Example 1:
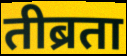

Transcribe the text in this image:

तीब्रता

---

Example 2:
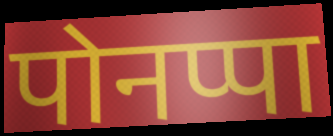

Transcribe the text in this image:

पोनप्‍पा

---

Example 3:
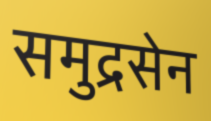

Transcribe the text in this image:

समुद्रसेन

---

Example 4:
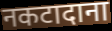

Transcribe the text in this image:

नकटादाना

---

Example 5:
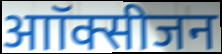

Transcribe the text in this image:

आॉक्सीजन